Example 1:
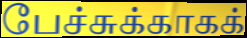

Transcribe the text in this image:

பேச்சுக்காகக்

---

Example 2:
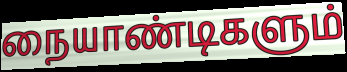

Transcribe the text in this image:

நையாண்டிகளும்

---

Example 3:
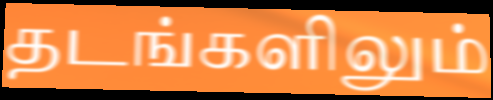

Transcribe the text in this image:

தடங்களிலும்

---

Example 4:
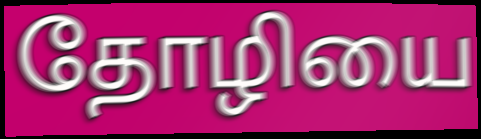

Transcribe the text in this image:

தோழியை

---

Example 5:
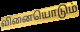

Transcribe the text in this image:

வினையொடும்